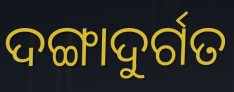
ଦଙ୍ଗାଦୁର୍ଗତ